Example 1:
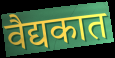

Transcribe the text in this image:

वैद्यकात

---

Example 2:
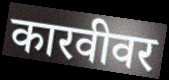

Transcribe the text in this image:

कारवीवर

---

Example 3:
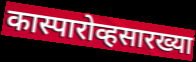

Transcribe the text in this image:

कास्पारोव्हसारख्या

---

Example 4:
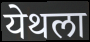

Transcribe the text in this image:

येथला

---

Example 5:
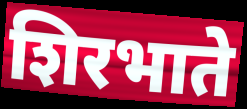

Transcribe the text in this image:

शिरभाते